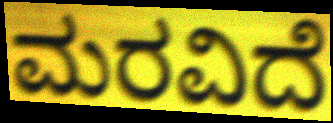
ಮರವಿದೆ